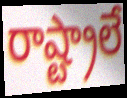
రాష్ట్రాలే